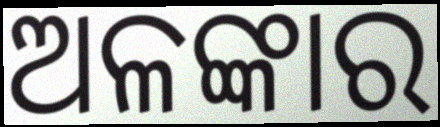
ଅଳଙ୍କାର